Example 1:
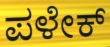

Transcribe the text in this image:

ಪಳೇಕ್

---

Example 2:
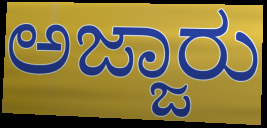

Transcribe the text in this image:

ಅಜ್ಜಾರು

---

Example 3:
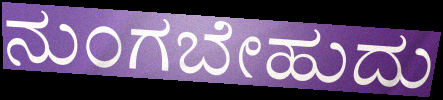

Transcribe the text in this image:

ನುಂಗಬೇಹುದು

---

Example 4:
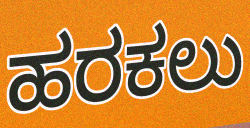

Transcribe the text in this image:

ಹರಕಲು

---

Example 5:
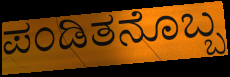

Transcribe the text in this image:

ಪಂಡಿತನೊಬ್ಬ